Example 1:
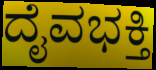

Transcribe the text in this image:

ದೈವಭಕ್ತಿ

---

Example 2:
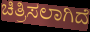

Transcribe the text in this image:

ಚಿತ್ರಿಸಲಾಗಿದೆ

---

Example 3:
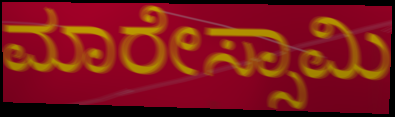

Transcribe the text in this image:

ಮಾರೇಸ್ಸಾಮಿ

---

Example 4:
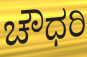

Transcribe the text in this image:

ಚೌಧರಿ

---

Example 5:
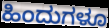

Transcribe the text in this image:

ಹಿಂದುಗಳೂ